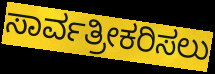
ಸಾರ್ವತ್ರೀಕರಿಸಲು